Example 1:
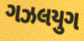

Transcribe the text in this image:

ગઝલયુગ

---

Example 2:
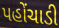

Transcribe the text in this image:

પહોંચાડી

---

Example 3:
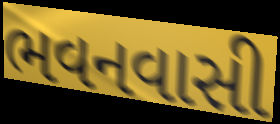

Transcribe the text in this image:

ભવનવાસી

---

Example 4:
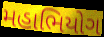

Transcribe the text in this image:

મહાભિયોગ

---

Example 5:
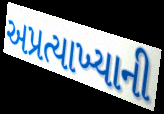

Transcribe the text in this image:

અપ્રત્યાખ્યાની